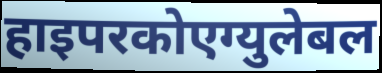
हाइपरकोएग्युलेबल